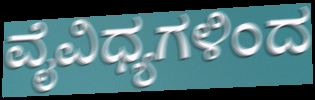
ವೈವಿಧ್ಯಗಳಿಂದ